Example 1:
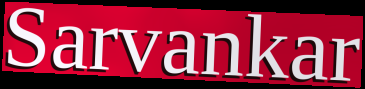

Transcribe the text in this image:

Sarvankar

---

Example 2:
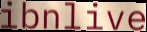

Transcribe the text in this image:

ibnlive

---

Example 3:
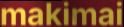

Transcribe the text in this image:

makimai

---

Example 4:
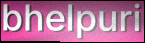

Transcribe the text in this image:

bhelpuri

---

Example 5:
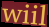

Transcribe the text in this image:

wiil